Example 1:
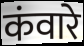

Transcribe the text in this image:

कंवारे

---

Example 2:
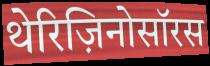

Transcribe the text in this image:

थेरिज़िनोसॉरस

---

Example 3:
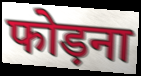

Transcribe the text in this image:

फोड़ना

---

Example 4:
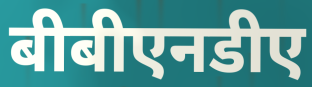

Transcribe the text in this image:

बीबीएनडीए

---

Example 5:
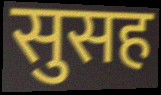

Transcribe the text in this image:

सुसह